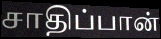
சாதிப்பான்